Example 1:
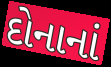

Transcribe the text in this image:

દોનાનાં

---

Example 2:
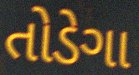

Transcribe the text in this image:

તોડેગા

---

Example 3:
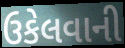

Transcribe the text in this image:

ઉકેલવાની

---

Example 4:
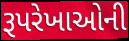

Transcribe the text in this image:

રૂપરેખાઓની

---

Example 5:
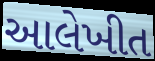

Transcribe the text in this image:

આલેખીત